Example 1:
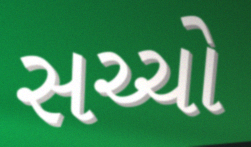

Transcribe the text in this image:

સચ્ચો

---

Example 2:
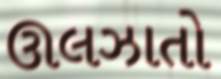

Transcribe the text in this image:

ઊલઝાતો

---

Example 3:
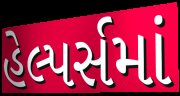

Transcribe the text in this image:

હેલ્પર્સમાં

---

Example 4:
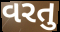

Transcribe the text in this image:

વરતુ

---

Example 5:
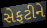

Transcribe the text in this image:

સેફટીને